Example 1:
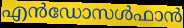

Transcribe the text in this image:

എൻഡോസൾഫാൻ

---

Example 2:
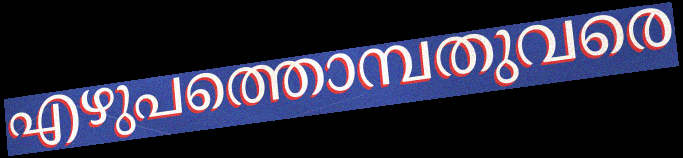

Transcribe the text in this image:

എഴുപത്തൊമ്പതുവരെ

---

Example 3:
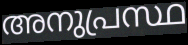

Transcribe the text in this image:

അനുപ്രസ്ഥ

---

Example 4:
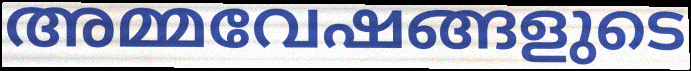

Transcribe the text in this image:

അമ്മവേഷങ്ങളുടെ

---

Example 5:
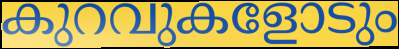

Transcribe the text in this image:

കുറവുകളോടും